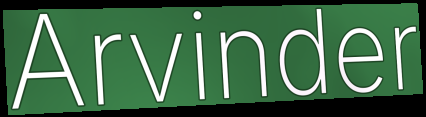
Arvinder